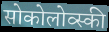
सोकोलोव्स्की